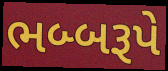
ભબ્બરૂપે